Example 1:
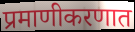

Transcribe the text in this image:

प्रमाणीकरणात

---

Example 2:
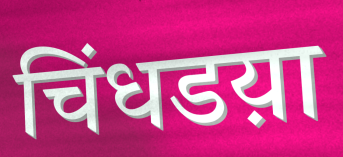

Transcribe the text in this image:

चिंधडय़ा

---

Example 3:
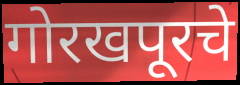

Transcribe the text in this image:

गोरखपूरचे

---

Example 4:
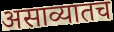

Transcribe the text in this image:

असाव्यातच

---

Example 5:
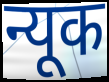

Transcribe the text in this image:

न्यूक